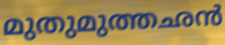
മുതുമുത്തഛൻ